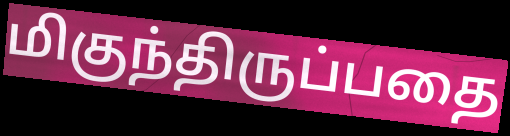
மிகுந்திருப்பதை